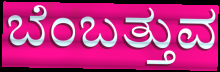
ಬೆಂಬತ್ತುವ